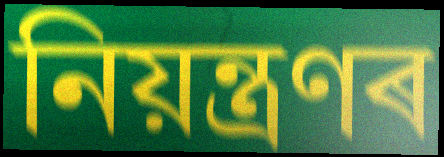
নিয়ন্ত্ৰণৰ